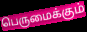
பெருமைக்கும்